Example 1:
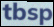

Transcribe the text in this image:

tbsp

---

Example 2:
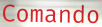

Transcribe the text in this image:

Comando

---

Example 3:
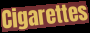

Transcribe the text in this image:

Cigarettes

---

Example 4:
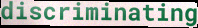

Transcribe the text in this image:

discriminating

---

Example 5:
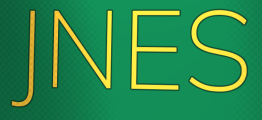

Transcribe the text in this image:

JNES